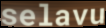
selavu